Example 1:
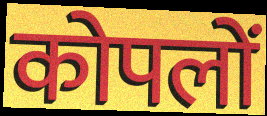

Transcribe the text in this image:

कोपलों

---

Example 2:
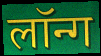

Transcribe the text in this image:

लॉन्ग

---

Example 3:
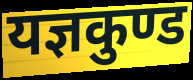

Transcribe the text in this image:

यज्ञकुण्ड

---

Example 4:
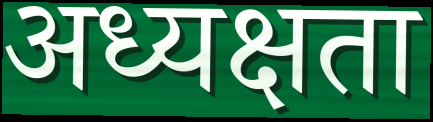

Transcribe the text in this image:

अध्यक्षता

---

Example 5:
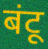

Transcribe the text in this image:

बंटू